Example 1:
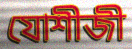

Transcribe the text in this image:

যোশীজী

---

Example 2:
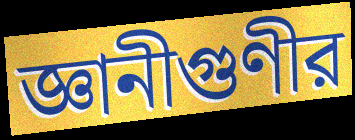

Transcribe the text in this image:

জ্ঞানীগুণীর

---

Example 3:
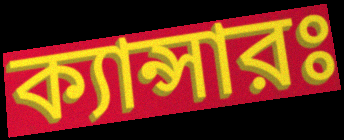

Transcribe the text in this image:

ক্যান্সারঃ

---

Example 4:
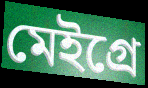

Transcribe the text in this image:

মেইগ্রে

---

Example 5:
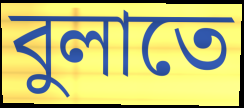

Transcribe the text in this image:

বুলাতে